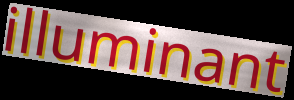
illuminant